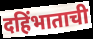
दहिंभाताची